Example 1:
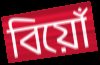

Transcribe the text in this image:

বিয়োঁ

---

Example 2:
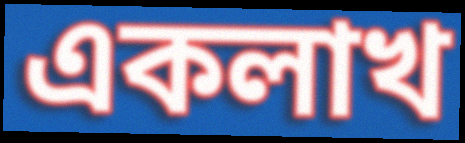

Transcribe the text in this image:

একলাখ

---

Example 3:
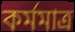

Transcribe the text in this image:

কর্মমাত্র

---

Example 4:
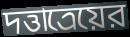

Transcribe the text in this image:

দত্তাত্রেয়ের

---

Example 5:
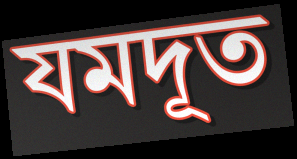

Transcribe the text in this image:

যমদূত